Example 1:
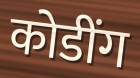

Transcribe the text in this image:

कोडींग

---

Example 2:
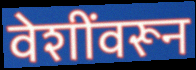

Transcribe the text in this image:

वेशींवरून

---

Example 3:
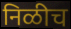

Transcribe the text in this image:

निळीच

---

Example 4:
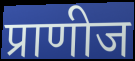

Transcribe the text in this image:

प्राणीज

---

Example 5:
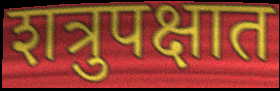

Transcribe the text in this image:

शत्रुपक्षात